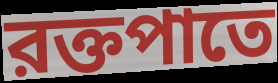
রক্তপাতে